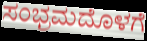
ಸಂಭ್ರಮದೊಳಗೆ